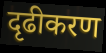
दृढीकरण